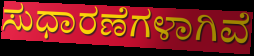
ಸುಧಾರಣೆಗಳಾಗಿವೆ